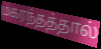
மகரந்தத்தால்